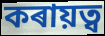
কৰায়ত্ব